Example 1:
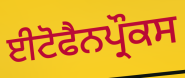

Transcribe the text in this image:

ਈਟੋਫੈਨਪ੍ਰੌਕਸ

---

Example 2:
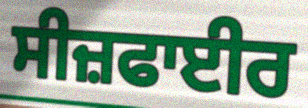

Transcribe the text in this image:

ਸੀਜ਼ਫਾਈਰ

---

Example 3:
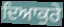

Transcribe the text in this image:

ਦਿਆਕੁਰੇ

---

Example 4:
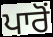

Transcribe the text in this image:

ਪਾਰੋਂ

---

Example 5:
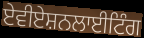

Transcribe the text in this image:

ਏਵੀਏਸ਼ਨਲਾਈਟਿੰਗ